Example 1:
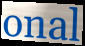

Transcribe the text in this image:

onal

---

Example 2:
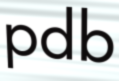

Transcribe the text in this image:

pdb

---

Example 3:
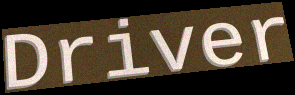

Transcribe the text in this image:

Driver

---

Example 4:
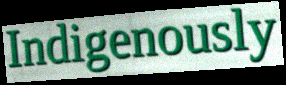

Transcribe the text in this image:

Indigenously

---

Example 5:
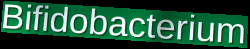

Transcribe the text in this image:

Bifidobacterium